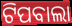
ଟିପବାଲା